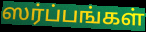
ஸர்ப்பங்கள்